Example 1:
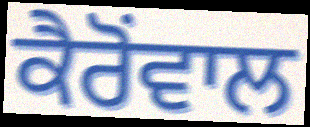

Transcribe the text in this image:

ਕੈਰੋਂਵਾਲ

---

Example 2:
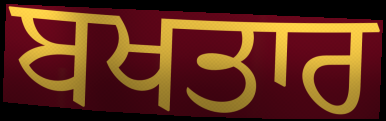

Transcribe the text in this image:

ਬਖਤਾਰ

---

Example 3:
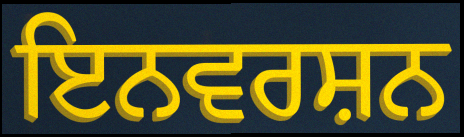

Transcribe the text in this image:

ਇਨਵਰਸ਼ਨ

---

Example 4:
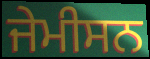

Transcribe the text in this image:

ਜੇਮੀਸਨ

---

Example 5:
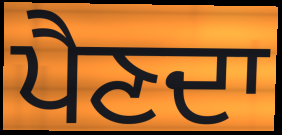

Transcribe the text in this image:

ਪੈਣਦਾ